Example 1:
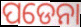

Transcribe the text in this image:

ପଡେନା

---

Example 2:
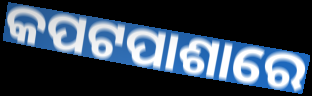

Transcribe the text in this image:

କପଟପାଶାରେ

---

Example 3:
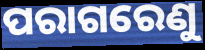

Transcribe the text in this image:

ପରାଗରେଣୁ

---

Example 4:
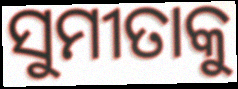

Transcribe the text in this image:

ସୁମୀତାକୁ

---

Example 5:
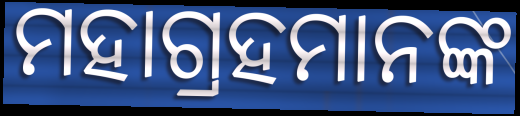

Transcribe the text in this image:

ମହାଗ୍ରହମାନଙ୍କ